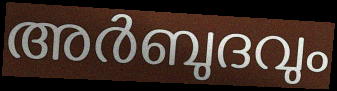
അർബുദവും